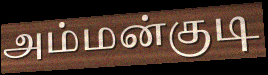
அம்மன்குடி